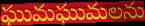
ఘుమఘుమలను